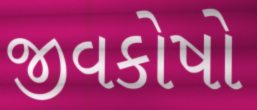
જીવકોષો